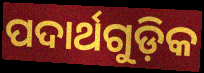
ପଦାର୍ଥଗୁଡ଼ିକ